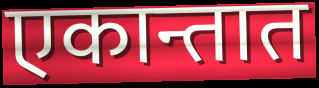
एकान्तात